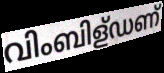
വിംബിള്ഡണ്